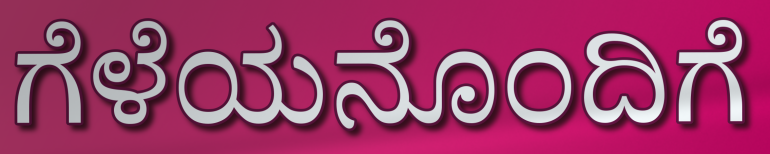
ಗೆಳೆಯನೊಂದಿಗೆ